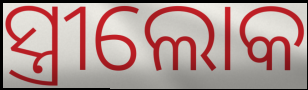
ସ୍ତ୍ରୀଲୋକ